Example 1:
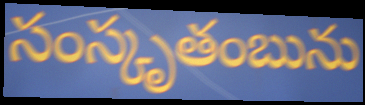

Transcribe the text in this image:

సంస్కృతంబును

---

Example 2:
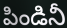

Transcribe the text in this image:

పిండినీ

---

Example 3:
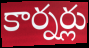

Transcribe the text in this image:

కార్నర్లు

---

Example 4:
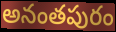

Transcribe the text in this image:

అనంతపురం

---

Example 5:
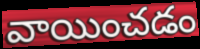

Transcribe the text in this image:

వాయించడం